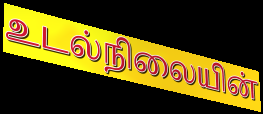
உடல்நிலையின்